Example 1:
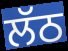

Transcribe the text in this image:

ਲੱਠ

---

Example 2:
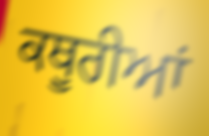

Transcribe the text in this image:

ਕਥੂਰੀਆਂ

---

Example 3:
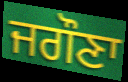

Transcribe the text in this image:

ਜਗੌਣਾ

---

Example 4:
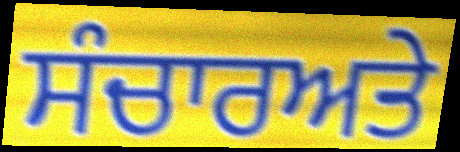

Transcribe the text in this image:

ਸੰਚਾਰਅਤੇ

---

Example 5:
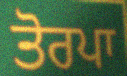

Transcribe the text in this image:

ਤੋਰਪਾ